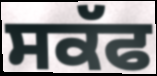
ਸਕੱਫ